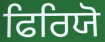
ਫਿਰਿਯੋ